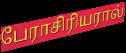
பேராசிரியரால்